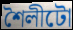
শৈলীটো